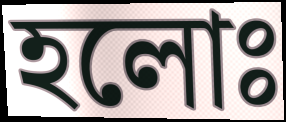
হলোঃ